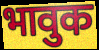
भावुक